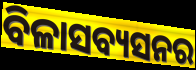
ବିଳାସବ୍ୟସନର